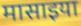
मासाइया